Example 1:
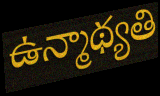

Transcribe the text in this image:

ఉన్మాథ్యతి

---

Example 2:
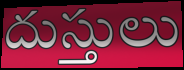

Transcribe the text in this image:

దుస్తులు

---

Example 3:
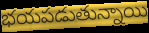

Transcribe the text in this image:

భయపడుతున్నాయి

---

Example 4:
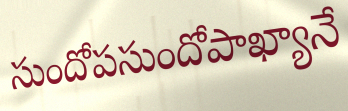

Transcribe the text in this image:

సుందోపసుందోపాఖ్యానే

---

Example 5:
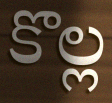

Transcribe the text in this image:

కొల్ల